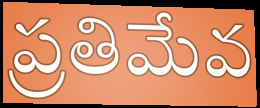
ప్రతిమేవ